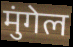
मुंगेल